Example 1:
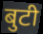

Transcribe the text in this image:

बुटी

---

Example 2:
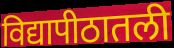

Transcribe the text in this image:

विद्यापीठातली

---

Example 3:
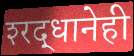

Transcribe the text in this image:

श्रद्धानेही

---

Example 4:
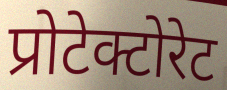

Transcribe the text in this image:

प्रोटेक्टोरेट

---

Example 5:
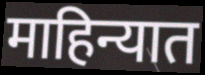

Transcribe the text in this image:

माहिन्यात